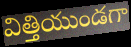
విత్తియుండగా